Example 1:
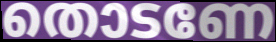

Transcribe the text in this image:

തൊടണേ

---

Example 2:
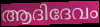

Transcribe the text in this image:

ആദിദേവം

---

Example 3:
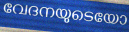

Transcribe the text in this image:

വേദനയുടെയോ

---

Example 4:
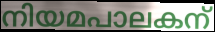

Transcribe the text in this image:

നിയമപാലകന്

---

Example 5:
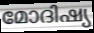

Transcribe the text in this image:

മോദിഷ്യ